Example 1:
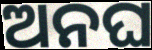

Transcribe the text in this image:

ଅନଘ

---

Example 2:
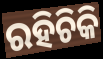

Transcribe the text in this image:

ରହିଚିକି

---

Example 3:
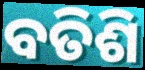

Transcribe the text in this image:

ବତିଶି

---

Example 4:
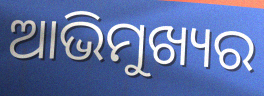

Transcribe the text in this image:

ଆଭିମୁଖ୍ୟର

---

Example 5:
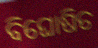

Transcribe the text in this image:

ବିଘୋଷିତ